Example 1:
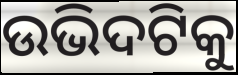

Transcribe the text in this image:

ଉଭିଦଟିକୁ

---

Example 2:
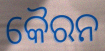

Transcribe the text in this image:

କୈରନ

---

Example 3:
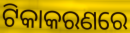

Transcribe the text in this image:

ଟିକାକରଣରେ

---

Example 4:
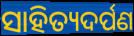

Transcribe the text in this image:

ସାହିତ୍ୟଦର୍ପଣ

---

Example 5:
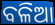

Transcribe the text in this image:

ବଳିଆ